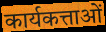
कार्यकत्ताओं